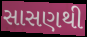
સાસણથી